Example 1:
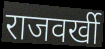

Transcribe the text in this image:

राजवर्खी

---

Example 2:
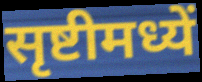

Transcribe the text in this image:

सृष्टीमध्यें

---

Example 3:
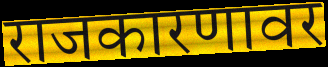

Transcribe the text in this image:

राजकारणावर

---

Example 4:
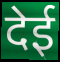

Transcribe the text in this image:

देई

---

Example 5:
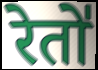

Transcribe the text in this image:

रेतो॑